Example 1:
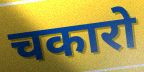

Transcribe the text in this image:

चकारो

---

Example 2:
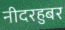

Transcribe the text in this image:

नीदरहुबर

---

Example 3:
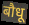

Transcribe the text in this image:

बौधू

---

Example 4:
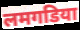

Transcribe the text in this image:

लमगडिया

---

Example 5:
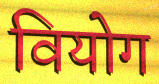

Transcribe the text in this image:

वियोग